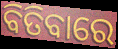
ବିତିବାରେ